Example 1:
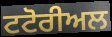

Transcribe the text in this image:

ਟਟੋਰੀਅਲ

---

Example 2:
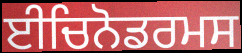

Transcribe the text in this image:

ਈਚਿਨੋਡਰਮਸ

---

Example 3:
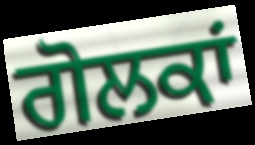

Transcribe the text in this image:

ਗੋਲਕਾਂ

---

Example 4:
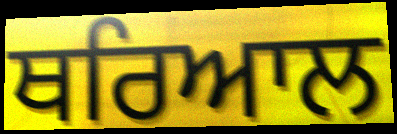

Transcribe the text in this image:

ਥਰਿਆਲ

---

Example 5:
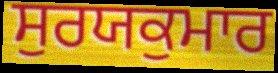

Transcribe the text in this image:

ਸੁਰਯਕੁਮਾਰ